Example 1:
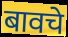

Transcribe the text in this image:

बावचे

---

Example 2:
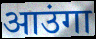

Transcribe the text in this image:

आउंगा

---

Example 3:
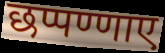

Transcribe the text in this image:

छप्पण्णाए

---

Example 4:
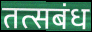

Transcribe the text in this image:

तत्सबंध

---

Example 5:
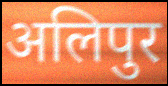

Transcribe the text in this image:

अलिपुर